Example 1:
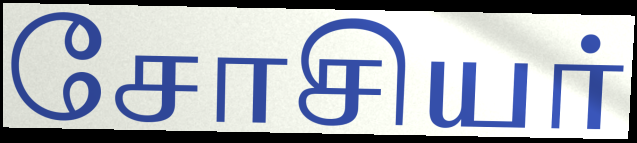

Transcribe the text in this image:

சோசியர்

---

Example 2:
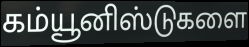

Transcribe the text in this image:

கம்யூனிஸ்டுகளை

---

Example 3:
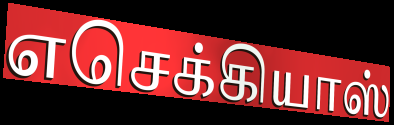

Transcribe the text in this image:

எசெக்கியாஸ்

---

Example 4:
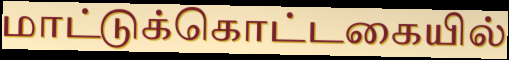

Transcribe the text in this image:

மாட்டுக்கொட்டகையில்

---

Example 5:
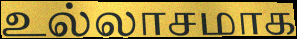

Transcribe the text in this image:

உல்லாசமாக